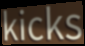
kicks